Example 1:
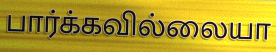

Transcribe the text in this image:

பார்க்கவில்லையா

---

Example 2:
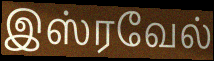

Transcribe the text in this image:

இஸ்ரவேல்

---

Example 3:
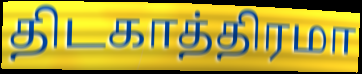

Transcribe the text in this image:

திடகாத்திரமா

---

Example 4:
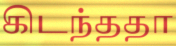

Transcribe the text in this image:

கிடந்ததா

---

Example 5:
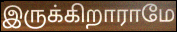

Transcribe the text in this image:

இருக்கிறாராமே